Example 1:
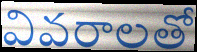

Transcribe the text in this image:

వివరాలతో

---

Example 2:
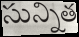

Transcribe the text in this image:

సున్నిత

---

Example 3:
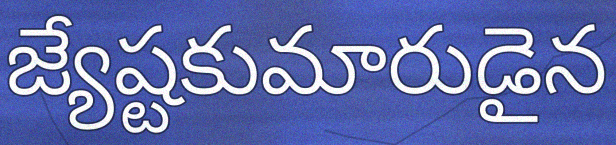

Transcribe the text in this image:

జ్యేష్టకుమారుడైన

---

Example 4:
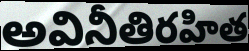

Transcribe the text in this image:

అవినీతిరహిత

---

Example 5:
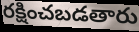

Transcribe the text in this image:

రక్షించబడతారు